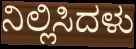
ನಿಲ್ಲಿಸಿದಳು